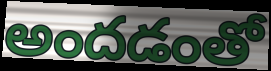
అందడంతో